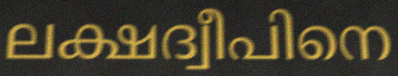
ലക്ഷദ്വീപിനെ